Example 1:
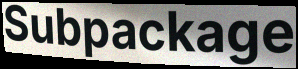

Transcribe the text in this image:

Subpackage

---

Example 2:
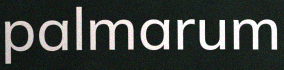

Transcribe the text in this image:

palmarum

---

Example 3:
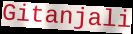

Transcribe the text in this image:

Gitanjali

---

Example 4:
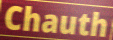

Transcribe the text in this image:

Chauth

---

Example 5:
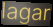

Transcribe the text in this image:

lagar